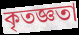
কৃতজ্ঞতা